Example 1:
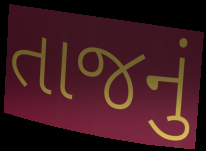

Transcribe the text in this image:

તાજનું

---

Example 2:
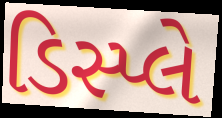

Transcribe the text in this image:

ડિસ્પ્લે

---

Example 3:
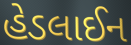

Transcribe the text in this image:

હેડલાઈન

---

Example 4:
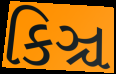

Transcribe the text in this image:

કિઞ્ચ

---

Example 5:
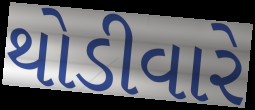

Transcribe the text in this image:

થોડીવારે